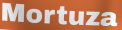
Mortuza